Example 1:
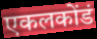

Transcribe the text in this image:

एकलकोंडं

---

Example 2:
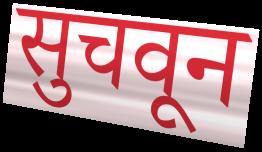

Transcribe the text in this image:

सुचवून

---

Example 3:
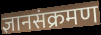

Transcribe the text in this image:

ज्ञानसंक्रमण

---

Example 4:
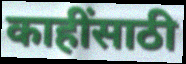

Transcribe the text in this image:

काहींसाठी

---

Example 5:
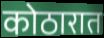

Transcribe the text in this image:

कोठारात